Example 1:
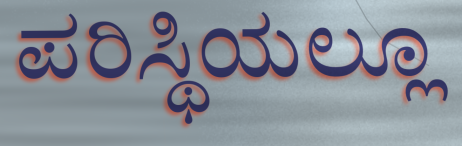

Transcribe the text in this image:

ಪರಿಸ್ಥಿಯಲ್ಲೂ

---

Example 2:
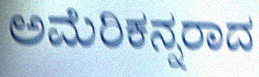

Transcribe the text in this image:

ಅಮೆರಿಕನ್ನರಾದ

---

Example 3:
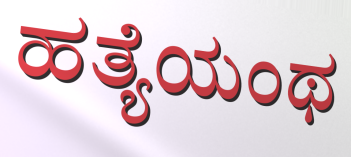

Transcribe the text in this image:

ಹತ್ಯೆಯಂಥ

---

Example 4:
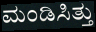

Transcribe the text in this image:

ಮಂಡಿಸಿತ್ತು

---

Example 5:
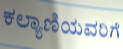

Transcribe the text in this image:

ಕಲ್ಯಾಣಿಯವರಿಗೆ